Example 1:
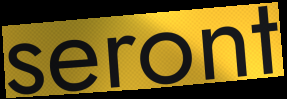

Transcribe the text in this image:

seront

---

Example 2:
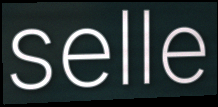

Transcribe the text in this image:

selle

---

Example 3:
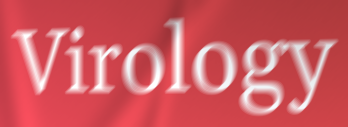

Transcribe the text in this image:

Virology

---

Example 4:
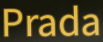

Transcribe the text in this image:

Prada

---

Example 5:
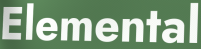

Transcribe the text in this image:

Elemental